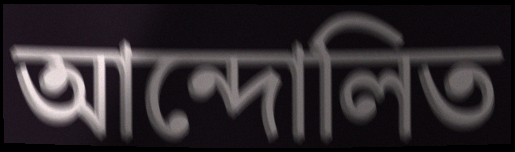
আন্দোলিত